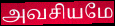
அவசியமே